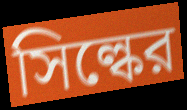
সিল্কের